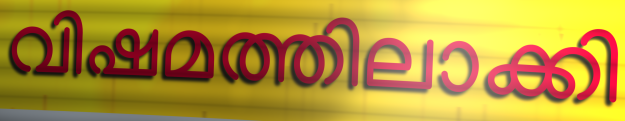
വിഷമത്തിലാക്കി